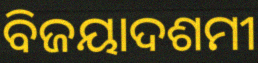
ବିଜୟାଦଶମୀ